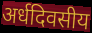
अर्धदिवसीय